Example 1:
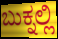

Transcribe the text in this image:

ಬುಕ್ನಲ್ಲಿ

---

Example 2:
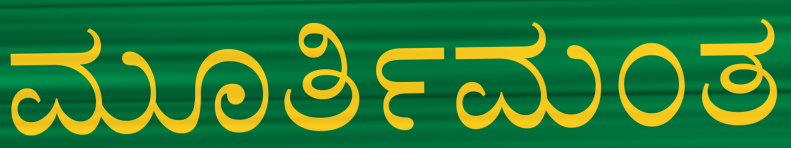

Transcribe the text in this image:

ಮೂರ್ತಿಮಂತ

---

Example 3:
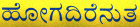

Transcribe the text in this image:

ಹೋಗದಿರೆನುತ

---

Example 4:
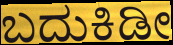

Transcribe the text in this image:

ಬದುಕಿಡೀ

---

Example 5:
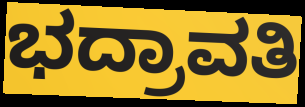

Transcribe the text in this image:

ಭದ್ರಾವತಿ